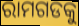
ରାମଗଡକୁ